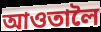
আওতালৈ